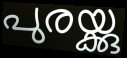
പുരയ്ക്കു